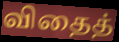
விதைத்